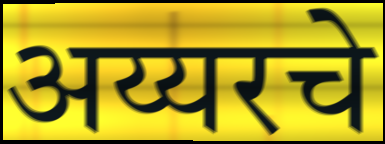
अय्यरचे